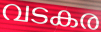
വടകര